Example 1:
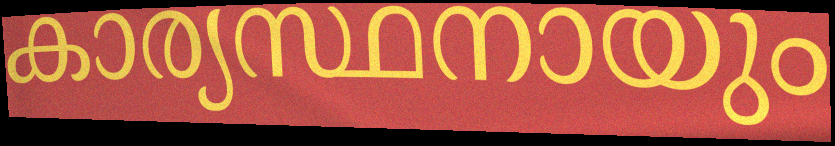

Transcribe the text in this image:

കാര്യസ്ഥനായും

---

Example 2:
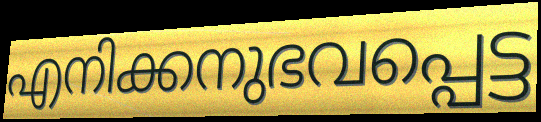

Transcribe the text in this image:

എനിക്കനുഭവപ്പെട്ട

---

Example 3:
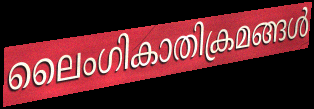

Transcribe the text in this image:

ലൈംഗികാതിക്രമങ്ങൾ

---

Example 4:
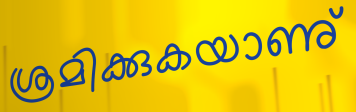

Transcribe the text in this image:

ശ്രമിക്കുകയാണു്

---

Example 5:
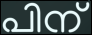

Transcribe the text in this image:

പിന്